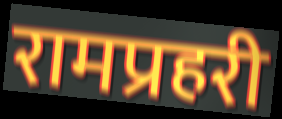
रामप्रहरी